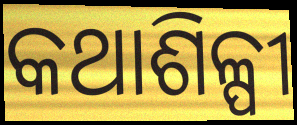
କଥାଶିଳ୍ପୀ